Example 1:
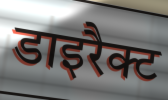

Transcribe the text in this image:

डाइरैक्ट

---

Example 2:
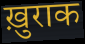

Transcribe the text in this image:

ख़ुराक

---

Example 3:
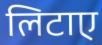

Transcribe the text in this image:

लिटाए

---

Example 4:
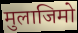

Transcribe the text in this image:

मुलाजिमो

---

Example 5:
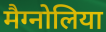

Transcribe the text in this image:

मैग्नोलिया